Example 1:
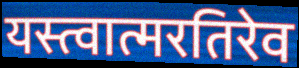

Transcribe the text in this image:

यस्त्वात्मरतिरेव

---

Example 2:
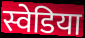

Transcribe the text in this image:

स्वेडिया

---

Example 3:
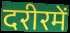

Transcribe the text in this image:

दरीरमें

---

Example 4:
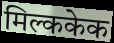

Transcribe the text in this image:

मिल्ककेक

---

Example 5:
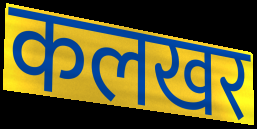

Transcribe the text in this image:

कलखर